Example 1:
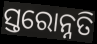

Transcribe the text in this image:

ସ୍ତରୋନ୍ନତି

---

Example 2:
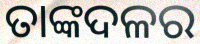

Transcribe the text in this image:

ତାଙ୍କଦଳର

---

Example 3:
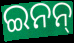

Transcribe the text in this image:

ଇନନ୍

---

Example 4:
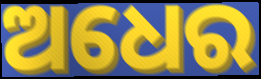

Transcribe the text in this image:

ଅଧେର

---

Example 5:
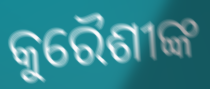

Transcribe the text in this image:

କୁରୈଶୀଙ୍କ